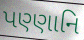
પણ્ણાનિ